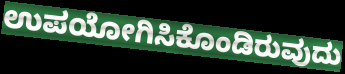
ಉಪಯೋಗಿಸಿಕೊಂಡಿರುವುದು